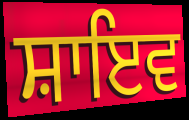
ਸ਼ਾਇਵ